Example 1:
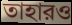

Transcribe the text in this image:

তাহারও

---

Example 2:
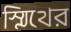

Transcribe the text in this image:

স্মিথের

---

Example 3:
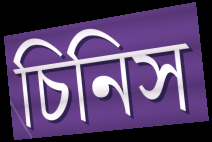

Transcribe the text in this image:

চিনিস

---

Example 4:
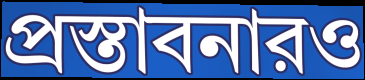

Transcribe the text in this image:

প্রস্তাবনারও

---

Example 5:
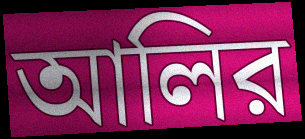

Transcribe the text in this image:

আলির